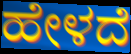
ಹೇಳದೆ